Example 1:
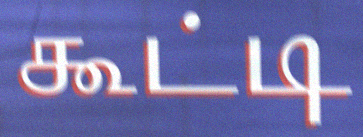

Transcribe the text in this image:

கூட்டி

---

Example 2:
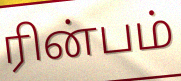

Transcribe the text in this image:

ரின்பம்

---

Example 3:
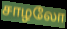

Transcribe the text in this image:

சாழலோ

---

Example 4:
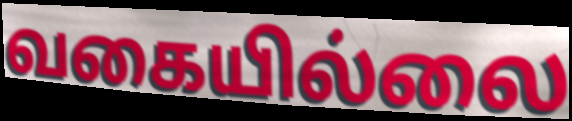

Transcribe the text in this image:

வகையில்லை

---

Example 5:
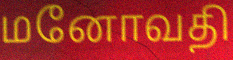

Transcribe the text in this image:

மனோவதி